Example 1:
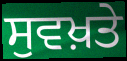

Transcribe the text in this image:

ਸੁਵਖ਼ਤੇ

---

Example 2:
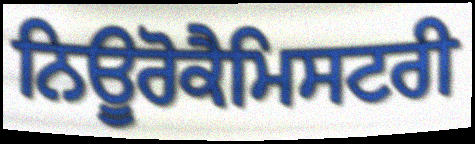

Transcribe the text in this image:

ਨਿਊਰੋਕੈਮਿਸਟਰੀ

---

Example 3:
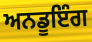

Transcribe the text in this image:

ਅਨਡੂਇੰਗ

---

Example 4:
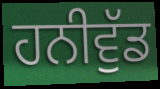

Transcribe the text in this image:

ਹਨੀਵੁੱਡ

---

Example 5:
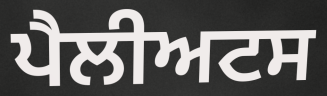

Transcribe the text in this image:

ਪੈਲੀਅਟਸ